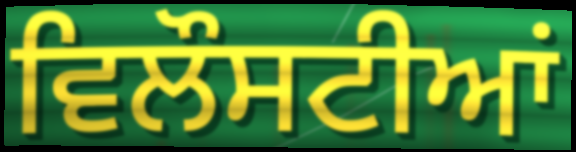
ਵਿਲੌਸਟੀਆਂ